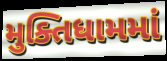
મુક્તિધામમાં